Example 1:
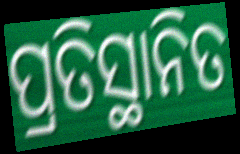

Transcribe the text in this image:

ପ୍ରତିସ୍ଥାନିତ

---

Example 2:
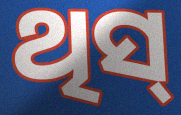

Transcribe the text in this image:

ଥିସ୍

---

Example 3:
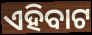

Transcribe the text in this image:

ଏହିବାଟ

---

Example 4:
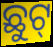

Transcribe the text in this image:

ଛୁଟ୍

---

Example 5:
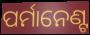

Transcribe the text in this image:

ପର୍ମାନେଣ୍ଟ